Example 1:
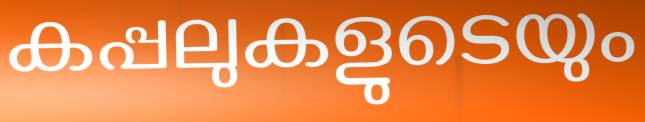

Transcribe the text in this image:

കപ്പലുകളുടെയും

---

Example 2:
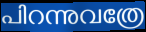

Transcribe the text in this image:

പിറന്നുവത്രേ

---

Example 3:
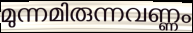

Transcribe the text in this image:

മുന്നമിരുന്നവണ്ണം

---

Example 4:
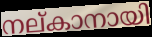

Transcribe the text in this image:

നല്കാനായി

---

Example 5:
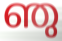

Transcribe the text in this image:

ഞു